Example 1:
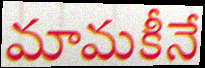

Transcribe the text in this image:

మామకీనే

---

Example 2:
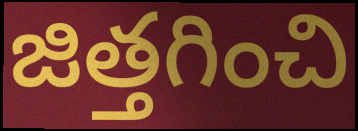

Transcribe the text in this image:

జిత్తగించి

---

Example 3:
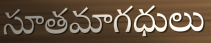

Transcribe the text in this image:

సూతమాగధులు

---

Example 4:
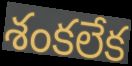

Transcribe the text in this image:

శంకలేక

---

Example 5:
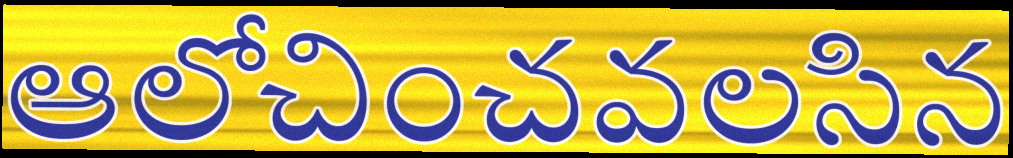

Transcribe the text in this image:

ఆలోచించవలసిన